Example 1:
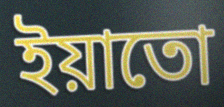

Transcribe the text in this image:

ইয়াতো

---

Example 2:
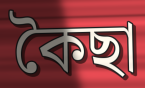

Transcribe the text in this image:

কৈছা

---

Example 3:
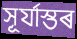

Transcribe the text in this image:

সূৰ্যাস্তৰ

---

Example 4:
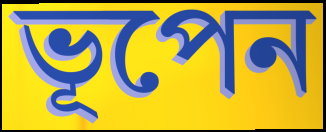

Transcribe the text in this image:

ভূপেন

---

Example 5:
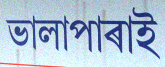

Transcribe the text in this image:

ভালাপাৰাই